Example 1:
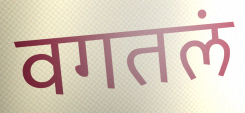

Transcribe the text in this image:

वगतलं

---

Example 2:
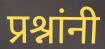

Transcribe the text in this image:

प्रश्नांनी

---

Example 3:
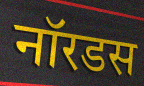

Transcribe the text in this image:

नॉरडस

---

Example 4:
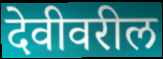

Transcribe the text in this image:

देवीवरील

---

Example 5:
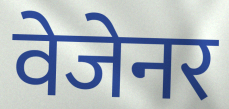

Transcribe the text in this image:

वेजेनर